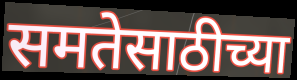
समतेसाठीच्या